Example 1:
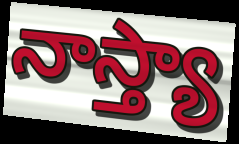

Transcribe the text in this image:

నాస్త్యా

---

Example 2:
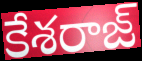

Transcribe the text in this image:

కేశరాజ్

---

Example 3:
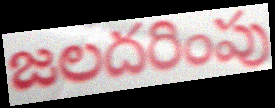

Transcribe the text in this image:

జలదరింపు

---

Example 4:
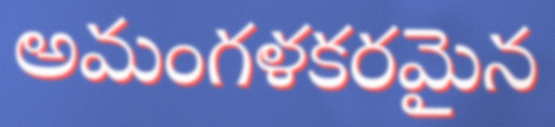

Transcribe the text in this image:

అమంగళకరమైన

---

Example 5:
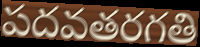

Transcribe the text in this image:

పదవతరగతి